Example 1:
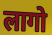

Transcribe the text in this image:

लागो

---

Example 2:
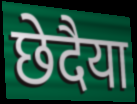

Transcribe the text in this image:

छेदैया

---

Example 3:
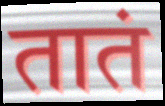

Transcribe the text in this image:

तातं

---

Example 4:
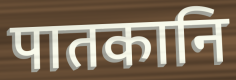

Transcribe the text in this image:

पातकानि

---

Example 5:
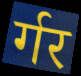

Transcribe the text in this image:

र्गर